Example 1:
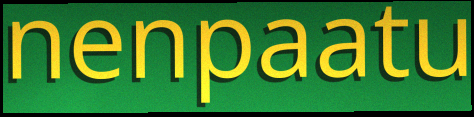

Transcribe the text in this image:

nenpaatu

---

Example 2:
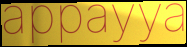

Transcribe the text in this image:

appayya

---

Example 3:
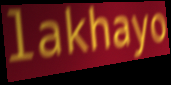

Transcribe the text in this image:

lakhayo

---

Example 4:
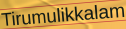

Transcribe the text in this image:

Tirumulikkalam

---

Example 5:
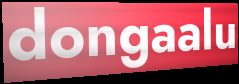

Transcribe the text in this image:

dongaalu